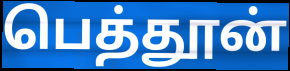
பெத்தூன்